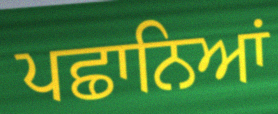
ਪਛਾਨਿਆਂ